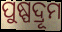
ପୁଷ୍ପଦ୍ରୂମ